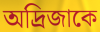
অদ্রিজাকে